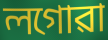
লগোৱা